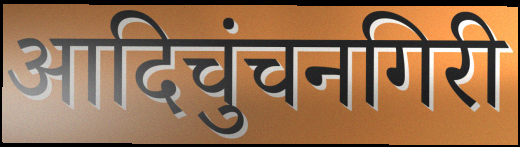
आदिचुंचनगिरी